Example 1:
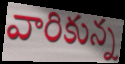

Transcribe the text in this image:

వారికున్న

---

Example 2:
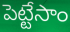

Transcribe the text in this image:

పెట్టేసాం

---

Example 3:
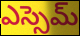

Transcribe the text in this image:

ఎస్సెమ్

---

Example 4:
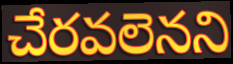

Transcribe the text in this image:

చేరవలెనని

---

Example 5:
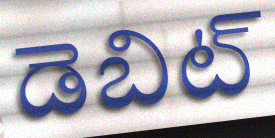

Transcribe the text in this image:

డెబిట్